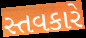
સ્તવકારે